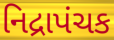
નિદ્રાપંચક